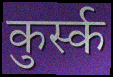
कुर्स्क